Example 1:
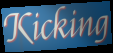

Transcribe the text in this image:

Kicking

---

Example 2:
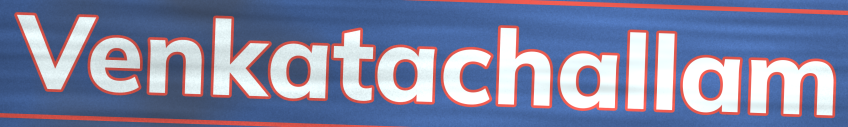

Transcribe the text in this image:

Venkatachallam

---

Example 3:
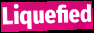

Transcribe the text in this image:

Liquefied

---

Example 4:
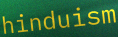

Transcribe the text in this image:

hinduism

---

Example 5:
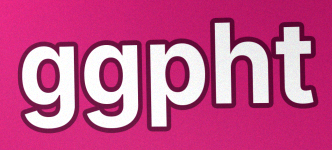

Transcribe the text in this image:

ggpht